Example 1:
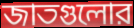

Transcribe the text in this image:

জাতগুলোর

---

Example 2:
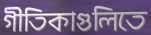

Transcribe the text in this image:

গীতিকাগুলিতে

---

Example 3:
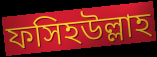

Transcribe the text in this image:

ফসিহউল্লাহ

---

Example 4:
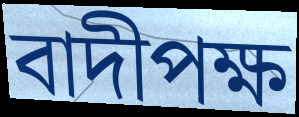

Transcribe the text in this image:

বাদীপক্ষ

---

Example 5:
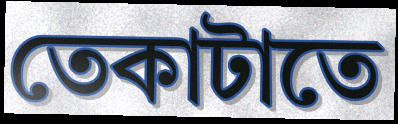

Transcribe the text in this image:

তেকাটাতে